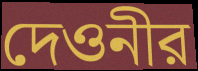
দেওনীর